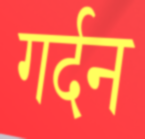
गर्दन